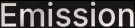
Emission